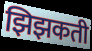
झिझकती